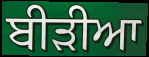
ਬੀੜੀਆ